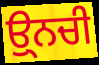
ਉ੍ਨਚੀ